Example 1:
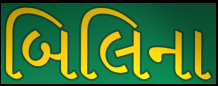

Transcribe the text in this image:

બિલિના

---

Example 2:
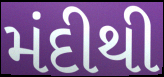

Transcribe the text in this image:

મંદીથી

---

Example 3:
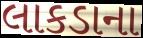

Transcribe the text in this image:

લાકડાના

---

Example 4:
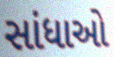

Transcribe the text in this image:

સાંધાઓ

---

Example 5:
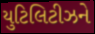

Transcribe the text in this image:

યુટિલિટીઝને